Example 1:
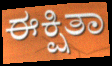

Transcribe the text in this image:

ಈಕ್ಷಿತಾ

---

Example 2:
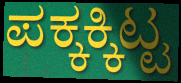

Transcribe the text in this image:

ಪಕ್ಕಕ್ಕಿಟ್ಟ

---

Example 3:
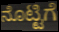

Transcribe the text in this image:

ನೊಟ್ಟಿಗೆ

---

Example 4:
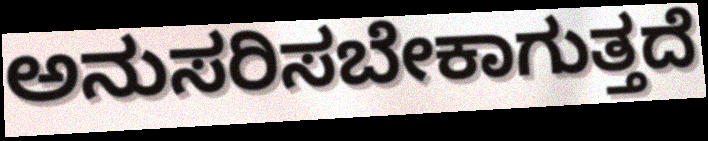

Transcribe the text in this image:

ಅನುಸರಿಸಬೇಕಾಗುತ್ತದೆ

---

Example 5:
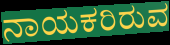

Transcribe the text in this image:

ನಾಯಕರಿರುವ